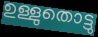
ഉള്ളുതൊട്ടു